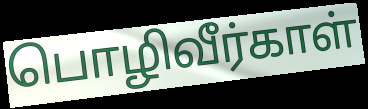
பொழிவீர்காள்